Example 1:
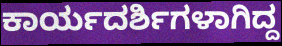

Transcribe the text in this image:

ಕಾರ್ಯದರ್ಶಿಗಳಾಗಿದ್ದ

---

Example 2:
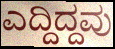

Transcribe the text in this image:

ಎದ್ದಿದ್ದವು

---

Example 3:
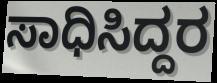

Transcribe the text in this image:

ಸಾಧಿಸಿದ್ದರ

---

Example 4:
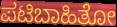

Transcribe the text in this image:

ಪಟಿಬಾಹಿತೋ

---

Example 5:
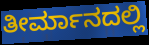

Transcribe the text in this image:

ತೀರ್ಮಾನದಲ್ಲಿ